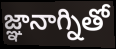
జ్ఞానాగ్నితో